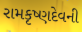
રામકૃષ્ણદેવની